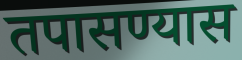
तपासण्यास